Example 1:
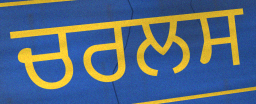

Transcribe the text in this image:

ਚਰਲਸ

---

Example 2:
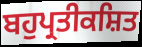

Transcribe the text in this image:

ਬਹੁਪ੍ਰਤੀਕਸ਼ਿਤ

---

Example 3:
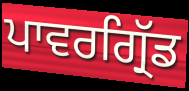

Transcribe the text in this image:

ਪਾਵਰਗ੍ਰਿੱਡ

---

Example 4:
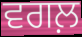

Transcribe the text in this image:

ਵਗਲ਼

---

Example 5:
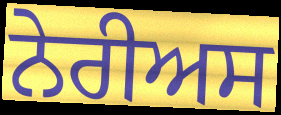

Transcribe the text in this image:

ਨੇਰੀਅਸ